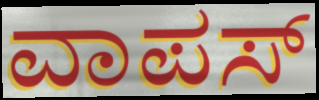
ವಾಪಸ್